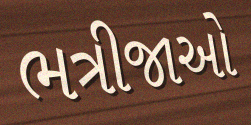
ભત્રીજાઓ